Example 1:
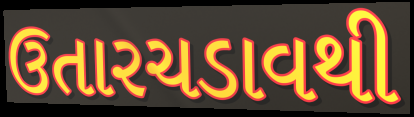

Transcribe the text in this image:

ઉતારચડાવથી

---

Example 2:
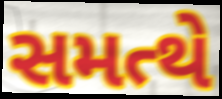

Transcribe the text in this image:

સમત્થે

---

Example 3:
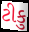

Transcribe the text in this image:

ટીકુ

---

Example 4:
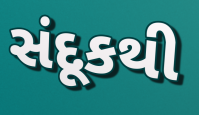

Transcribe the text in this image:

સંદૂકથી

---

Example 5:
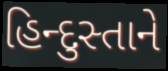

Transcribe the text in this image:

હિન્દુસ્તાને